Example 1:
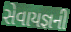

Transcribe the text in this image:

સેવાયજ્ઞની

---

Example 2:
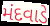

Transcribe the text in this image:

મંદવાડે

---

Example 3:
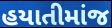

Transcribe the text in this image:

હયાતીમાંજ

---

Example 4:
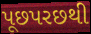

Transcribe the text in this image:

પૂછપરછથી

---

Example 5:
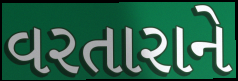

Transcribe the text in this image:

વરતારાને